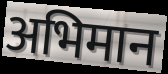
अभिमान